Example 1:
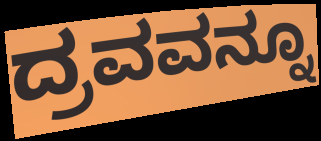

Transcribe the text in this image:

ದ್ರವವನ್ನೂ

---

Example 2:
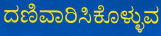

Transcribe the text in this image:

ದಣಿವಾರಿಸಿಕೊಳ್ಳುವ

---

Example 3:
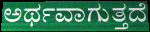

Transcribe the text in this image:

ಅರ್ಥವಾಗುತ್ತದೆ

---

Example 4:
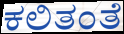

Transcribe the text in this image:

ಕಲಿತಂತೆ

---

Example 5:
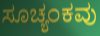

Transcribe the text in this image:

ಸೂಚ್ಯಂಕವು